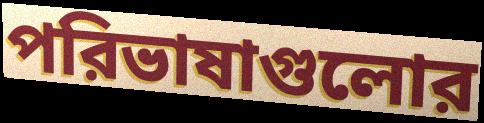
পরিভাষাগুলোর